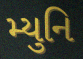
મ્યુનિ